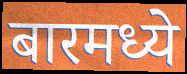
बारमध्ये